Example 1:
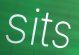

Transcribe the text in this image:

sits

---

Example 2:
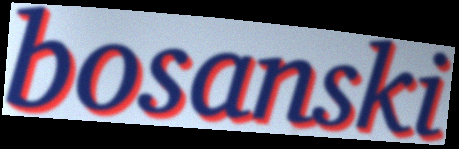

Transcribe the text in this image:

bosanski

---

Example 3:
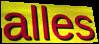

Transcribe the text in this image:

alles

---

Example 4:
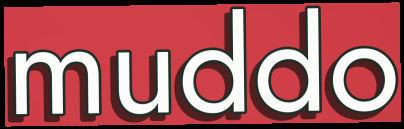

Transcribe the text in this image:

muddo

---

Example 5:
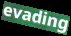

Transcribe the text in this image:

evading